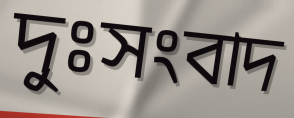
দুঃসংবাদ